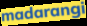
madarangi